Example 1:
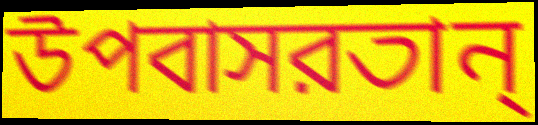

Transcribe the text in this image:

উপবাসরতান্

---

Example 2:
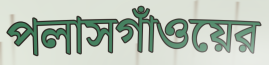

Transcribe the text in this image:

পলাসগাঁওয়ের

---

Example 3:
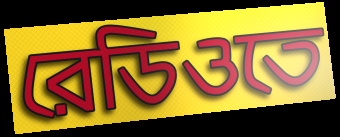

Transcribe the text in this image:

রেডিওতে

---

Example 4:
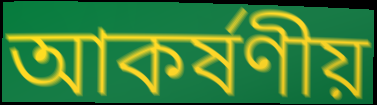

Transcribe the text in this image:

আকর্ষণীয়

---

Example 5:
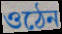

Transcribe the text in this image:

ওঠেন